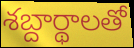
శబ్దార్థాలతో